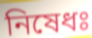
নিষেধঃ